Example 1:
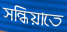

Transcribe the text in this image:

সন্ধিয়াতে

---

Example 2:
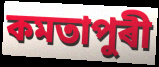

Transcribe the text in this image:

কমতাপুৰী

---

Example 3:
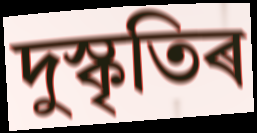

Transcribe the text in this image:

দুস্কৃতিৰ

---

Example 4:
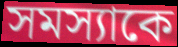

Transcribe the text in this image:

সমস্যাকে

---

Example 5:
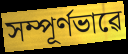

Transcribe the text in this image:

সম্পূৰ্ণভাৱে